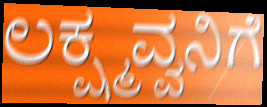
ಲಕ್ಷ್ಮವ್ವನಿಗೆ